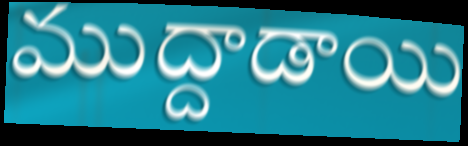
ముద్దాడాయి